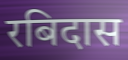
रबिदास